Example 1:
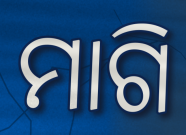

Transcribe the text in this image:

ମାଗି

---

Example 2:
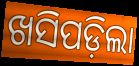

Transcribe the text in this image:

ଖସିପଡ଼ିଲା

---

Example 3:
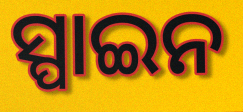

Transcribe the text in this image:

ସ୍ପାଇନ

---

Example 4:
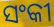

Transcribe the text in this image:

ସଂକୀ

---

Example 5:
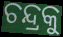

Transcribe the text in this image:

ଚନ୍ଦ୍ରକୁ